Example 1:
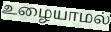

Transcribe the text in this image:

உழையாமல்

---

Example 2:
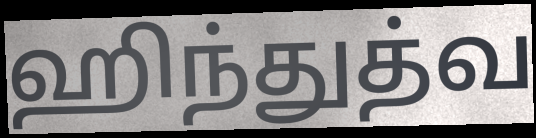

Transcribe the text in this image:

ஹிந்துத்வ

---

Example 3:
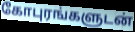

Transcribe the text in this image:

கோபுரங்களுடன்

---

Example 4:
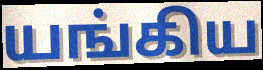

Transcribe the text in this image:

யங்கிய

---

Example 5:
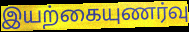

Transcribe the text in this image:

இயற்கையுணர்வு